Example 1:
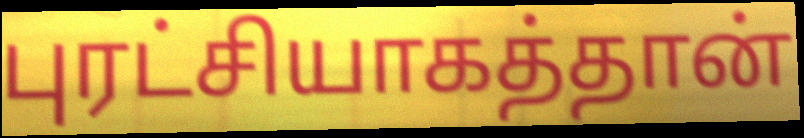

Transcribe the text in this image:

புரட்சியாகத்தான்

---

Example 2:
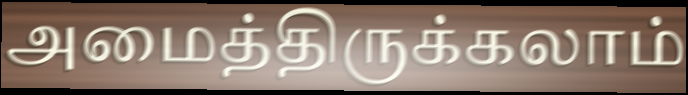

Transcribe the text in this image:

அமைத்திருக்கலாம்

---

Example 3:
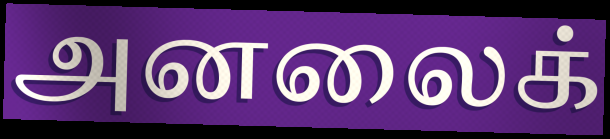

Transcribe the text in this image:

அனலைக்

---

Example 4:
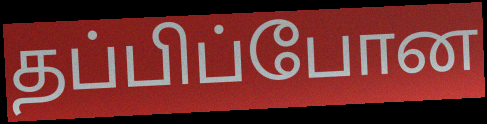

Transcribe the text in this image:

தப்பிப்போன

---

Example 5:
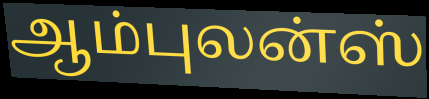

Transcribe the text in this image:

ஆம்புலன்ஸ்